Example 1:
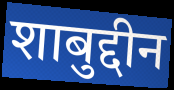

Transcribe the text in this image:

शाबुद्दीन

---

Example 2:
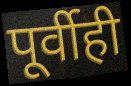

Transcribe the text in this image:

पूर्वीही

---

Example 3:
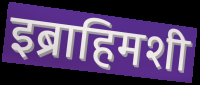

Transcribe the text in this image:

इब्राहिमशी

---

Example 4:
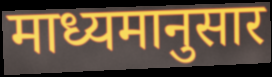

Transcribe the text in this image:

माध्यमानुसार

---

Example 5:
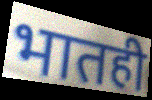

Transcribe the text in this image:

भातही